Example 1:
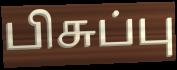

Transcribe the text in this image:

பிசுப்பு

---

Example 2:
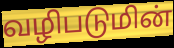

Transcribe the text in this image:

வழிபடுமின்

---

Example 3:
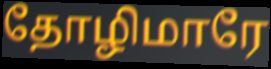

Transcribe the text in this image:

தோழிமாரே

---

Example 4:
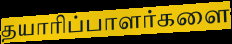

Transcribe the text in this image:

தயாரிப்பாளர்களை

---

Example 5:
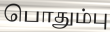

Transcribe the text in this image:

பொதும்பு